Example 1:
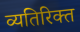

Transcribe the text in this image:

व्यतिरिक्त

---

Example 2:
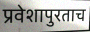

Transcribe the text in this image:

प्रवेशापुरताच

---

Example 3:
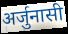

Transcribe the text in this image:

अर्जुनासी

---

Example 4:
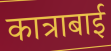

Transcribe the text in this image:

कात्राबाई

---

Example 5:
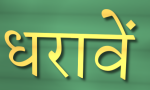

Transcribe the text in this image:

धरावें